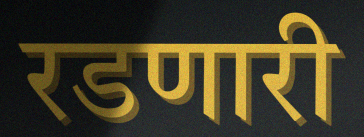
रडणारी